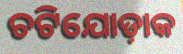
ଚଟିଯୋଡ଼ାକ